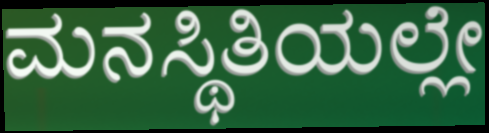
ಮನಸ್ಥಿತಿಯಲ್ಲೇ